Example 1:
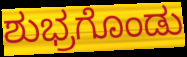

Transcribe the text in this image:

ಶುಭ್ರಗೊಂಡು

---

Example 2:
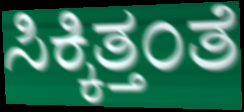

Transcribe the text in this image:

ಸಿಕ್ಕಿತ್ತಂತೆ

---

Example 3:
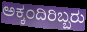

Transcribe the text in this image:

ಅಕ್ಕಂದಿರಿಬ್ಬರು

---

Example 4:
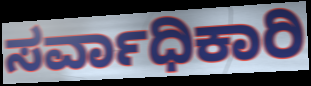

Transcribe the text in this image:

ಸರ್ವಾಧಿಕಾರಿ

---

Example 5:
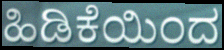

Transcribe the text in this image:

ಹಿಡಿಕೆಯಿಂದ